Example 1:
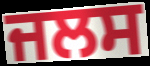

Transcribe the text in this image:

ਜਲਸ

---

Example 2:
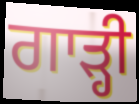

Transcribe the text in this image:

ਗਾੜ੍ਹੀ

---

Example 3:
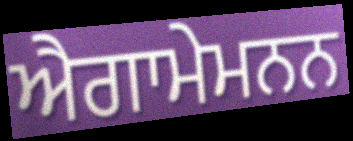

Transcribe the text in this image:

ਐਗਾਮੇਮਨਨ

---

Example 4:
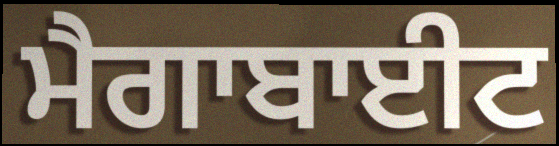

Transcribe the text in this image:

ਮੈਗਾਬਾਈਟ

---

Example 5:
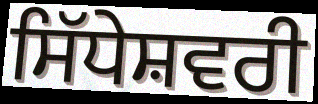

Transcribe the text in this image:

ਸਿੱਧੇਸ਼ਵਰੀ